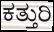
ಕತ್ತುರಿ